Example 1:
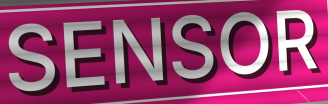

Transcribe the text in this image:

SENSOR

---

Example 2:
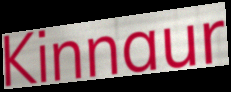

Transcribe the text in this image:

Kinnaur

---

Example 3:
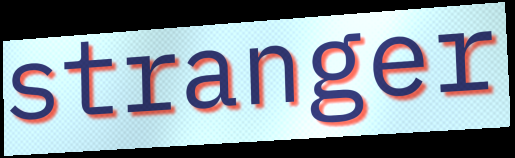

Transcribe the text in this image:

stranger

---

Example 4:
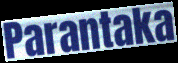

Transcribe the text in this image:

Parantaka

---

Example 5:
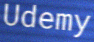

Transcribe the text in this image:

Udemy